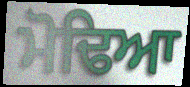
ਮੋਢਿਆ